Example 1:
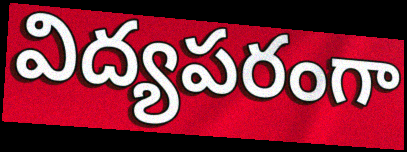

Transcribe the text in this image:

విద్యపరంగా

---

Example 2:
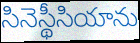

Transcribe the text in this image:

సినెస్థీసియాను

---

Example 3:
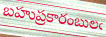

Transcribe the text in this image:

బహుప్రకారంబులఁ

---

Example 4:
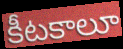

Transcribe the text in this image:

కీటకాలూ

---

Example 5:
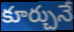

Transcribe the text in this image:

కూర్చునే